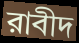
রাবীদ